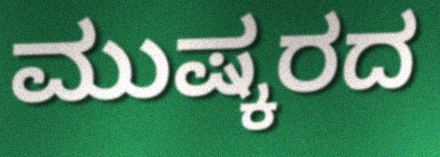
ಮುಷ್ಕರದ